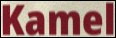
Kamel